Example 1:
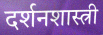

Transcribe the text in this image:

दर्शनशास्त्री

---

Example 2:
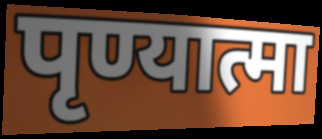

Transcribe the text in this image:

पृण्यात्मा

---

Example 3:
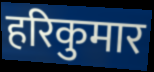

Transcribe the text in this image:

हरिकुमार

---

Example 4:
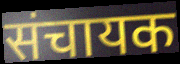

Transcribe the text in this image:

संचायक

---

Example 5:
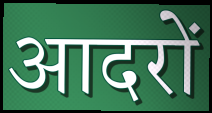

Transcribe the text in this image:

आदरों